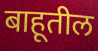
बाहूतील